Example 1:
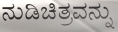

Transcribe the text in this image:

ನುಡಿಚಿತ್ರವನ್ನು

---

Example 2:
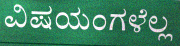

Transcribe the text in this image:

ವಿಷಯಂಗಳೆಲ್ಲ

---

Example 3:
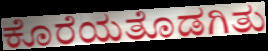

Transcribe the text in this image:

ಕೊರೆಯತೊಡಗಿತು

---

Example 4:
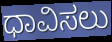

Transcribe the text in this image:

ಧಾವಿಸಲು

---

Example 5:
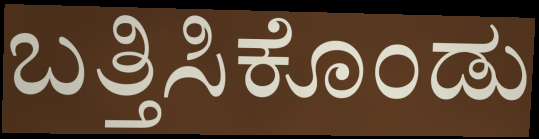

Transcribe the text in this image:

ಬತ್ತಿಸಿಕೊಂಡು